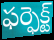
ఫర్ఫెక్ట్